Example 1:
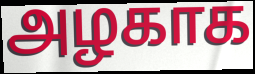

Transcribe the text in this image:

அழகாக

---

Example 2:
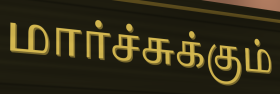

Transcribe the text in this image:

மார்ச்சுக்கும்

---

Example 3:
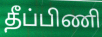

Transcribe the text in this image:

தீப்பிணி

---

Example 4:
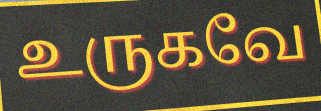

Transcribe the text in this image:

உருகவே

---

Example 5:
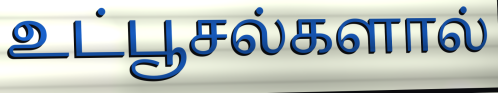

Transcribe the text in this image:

உட்பூசல்களால்